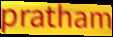
pratham